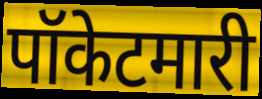
पॉकेटमारी